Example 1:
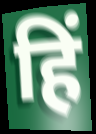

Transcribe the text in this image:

हिं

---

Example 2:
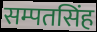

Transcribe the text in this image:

सम्पतसिंह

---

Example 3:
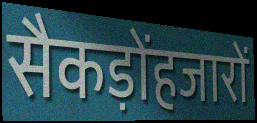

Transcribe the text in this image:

सैकड़ोंहजारों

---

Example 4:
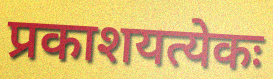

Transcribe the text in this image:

प्रकाशयत्येकः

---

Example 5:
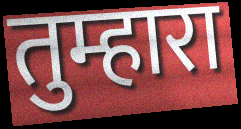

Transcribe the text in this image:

तुम्‍हारा